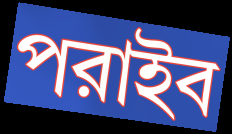
পরাইব